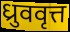
ध्रुववृत्त